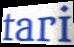
tari